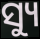
ସ୍ୟୁ